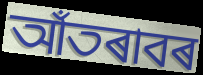
আঁতৰাবৰ